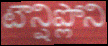
టౌన్షిప్లోని